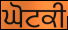
ਘੋਟਕੀ